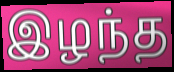
இழந்த